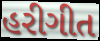
હરીગીત